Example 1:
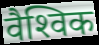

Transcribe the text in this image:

वैश्‍विक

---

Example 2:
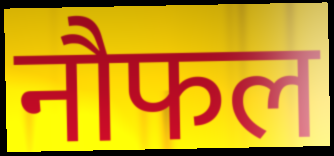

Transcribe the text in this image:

नौफल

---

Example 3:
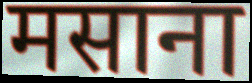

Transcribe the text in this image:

मसाना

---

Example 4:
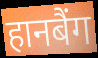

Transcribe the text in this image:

हानबैंग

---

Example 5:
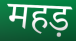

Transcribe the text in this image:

महड़